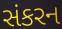
સંકરન